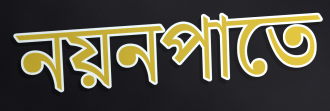
নয়নপাতে